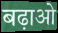
बढ़ाओ